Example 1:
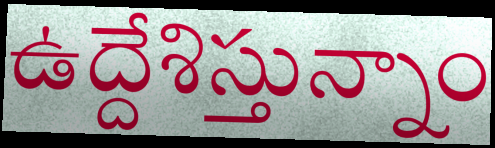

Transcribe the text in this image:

ఉద్దేశిస్తున్నాం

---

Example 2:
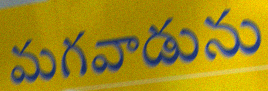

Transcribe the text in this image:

మగవాడును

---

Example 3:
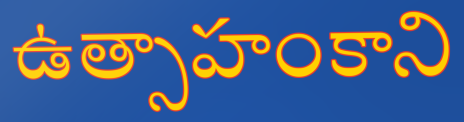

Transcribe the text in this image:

ఉత్సాహంకాని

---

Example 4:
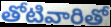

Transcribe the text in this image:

తోటివారితో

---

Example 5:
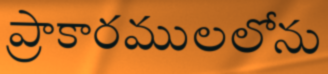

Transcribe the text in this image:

ప్రాకారములలోను